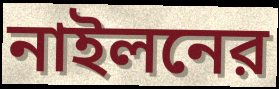
নাইলনের